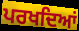
ਪਰਖਦਿਆਂ